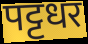
पट्टधर